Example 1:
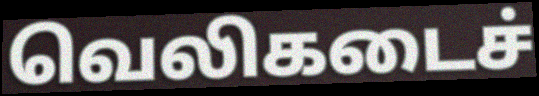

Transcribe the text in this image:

வெலிகடைச்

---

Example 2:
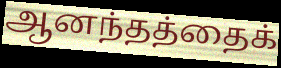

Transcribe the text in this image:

ஆனந்தத்தைக்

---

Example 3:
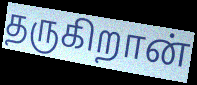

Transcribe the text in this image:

தருகிறான்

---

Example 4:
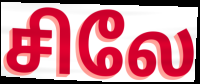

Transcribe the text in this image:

சிலே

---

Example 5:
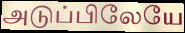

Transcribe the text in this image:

அடுப்பிலேயே